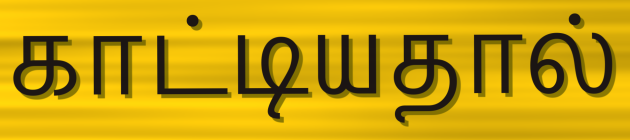
காட்டியதால்